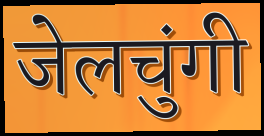
जेलचुंगी